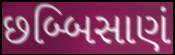
છબ્બિસાણં